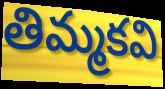
తిమ్మకవి